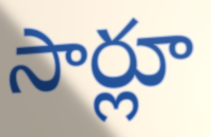
సార్లూ